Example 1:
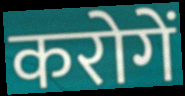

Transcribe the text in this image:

करोगें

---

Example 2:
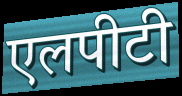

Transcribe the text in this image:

एलपीटी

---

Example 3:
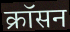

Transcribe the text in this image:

क्रॉसन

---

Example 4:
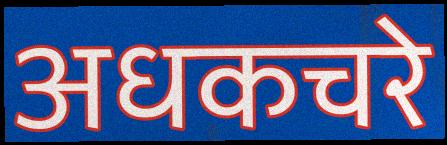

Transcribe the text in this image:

अधकचरे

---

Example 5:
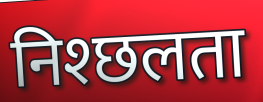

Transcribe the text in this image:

निश्छलता